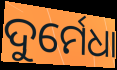
ଦୁର୍ମେଧା